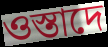
ওস্তাদে